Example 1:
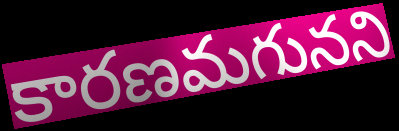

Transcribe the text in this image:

కారణమగునని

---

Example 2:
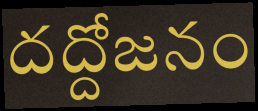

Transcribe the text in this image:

దద్దోజనం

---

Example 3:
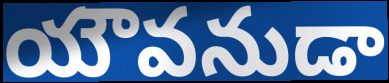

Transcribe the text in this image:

యౌవనుడా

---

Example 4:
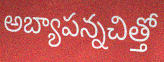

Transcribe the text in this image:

అబ్యాపన్నచిత్తో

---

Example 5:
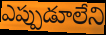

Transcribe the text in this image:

ఎప్పుడూలేని